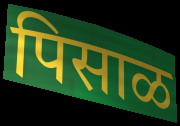
पिसाळ